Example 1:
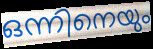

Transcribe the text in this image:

ഒന്നിനെയും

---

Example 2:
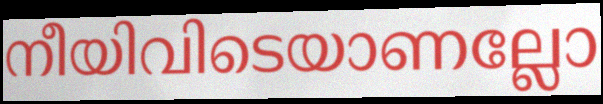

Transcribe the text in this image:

നീയിവിടെയാണല്ലോ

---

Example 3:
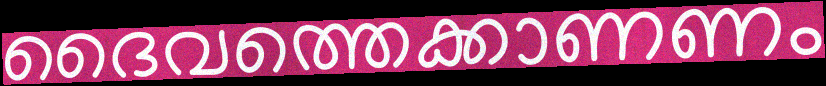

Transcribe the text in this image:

ദൈവത്തെക്കാണണം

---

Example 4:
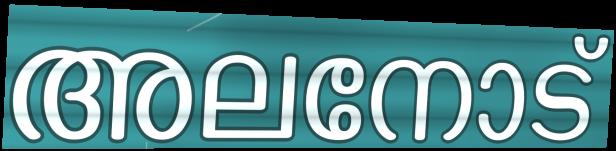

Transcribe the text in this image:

അലനോട്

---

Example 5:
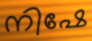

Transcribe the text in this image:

നിഷേ